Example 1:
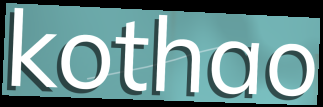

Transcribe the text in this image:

kothao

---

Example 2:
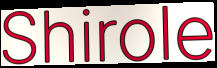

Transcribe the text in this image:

Shirole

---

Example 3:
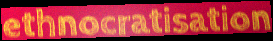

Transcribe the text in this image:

ethnocratisation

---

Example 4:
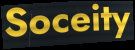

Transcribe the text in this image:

Soceity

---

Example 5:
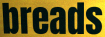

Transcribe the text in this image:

breads